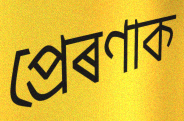
প্ৰেৰণাক